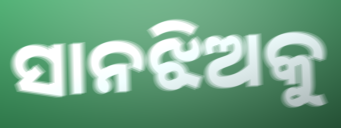
ସାନଝିଅକୁ